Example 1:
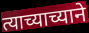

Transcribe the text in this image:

त्याच्याच्याने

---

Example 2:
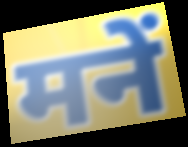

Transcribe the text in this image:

मनें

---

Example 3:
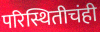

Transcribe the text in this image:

परिस्थितीचंही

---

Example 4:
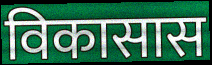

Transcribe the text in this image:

विकासास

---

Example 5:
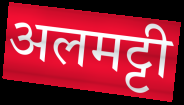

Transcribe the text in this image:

अलमट्टी